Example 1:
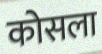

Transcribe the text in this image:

कोसला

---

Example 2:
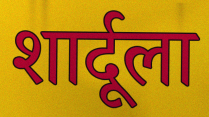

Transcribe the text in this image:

शार्दूला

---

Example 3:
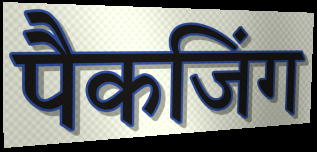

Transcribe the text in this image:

पैकजिंग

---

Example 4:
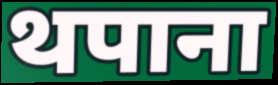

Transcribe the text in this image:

थपाना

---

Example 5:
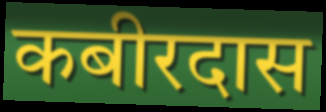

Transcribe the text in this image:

कबीरदास